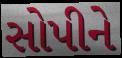
સોપીને